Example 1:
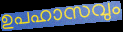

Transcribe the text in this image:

ഉപഹാസവും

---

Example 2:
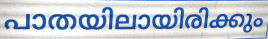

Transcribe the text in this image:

പാതയിലായിരിക്കും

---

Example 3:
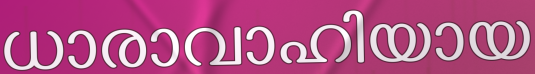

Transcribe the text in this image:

ധാരാവാഹിയായ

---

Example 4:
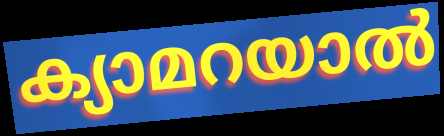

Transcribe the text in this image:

ക്യാമറയാൽ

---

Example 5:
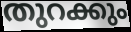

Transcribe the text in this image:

തുറക്കും